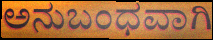
ಅನುಬಂಧವಾಗಿ